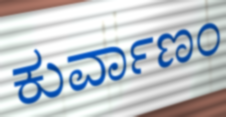
ಕುರ್ವಾಣಂ